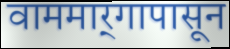
वाममार्गापासून